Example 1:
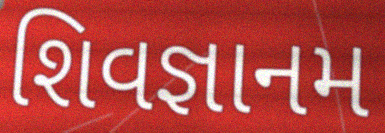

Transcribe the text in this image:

શિવજ્ઞાનમ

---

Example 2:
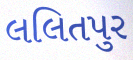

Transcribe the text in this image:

લલિતપુર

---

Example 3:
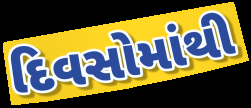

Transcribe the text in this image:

દિવસોમાંથી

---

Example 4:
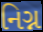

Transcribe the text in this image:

નિગ્ન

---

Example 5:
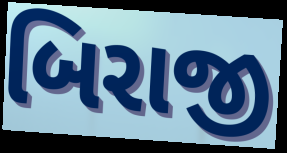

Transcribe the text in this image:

બિરાજી